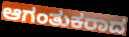
ಆಗಂತುಕರಾದ